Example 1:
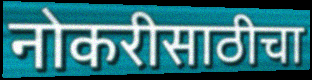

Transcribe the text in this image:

नोकरीसाठीचा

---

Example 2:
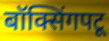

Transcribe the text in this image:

बॉक्सिंगपटू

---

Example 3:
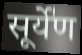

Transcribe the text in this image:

सूर्ये॑ण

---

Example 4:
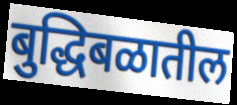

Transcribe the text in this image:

बुद्धिबळातील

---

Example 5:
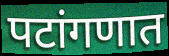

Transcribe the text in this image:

पटांगणात